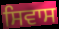
ਸਿਵਾਸ